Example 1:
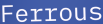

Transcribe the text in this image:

Ferrous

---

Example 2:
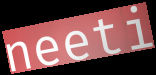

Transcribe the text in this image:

neeti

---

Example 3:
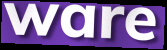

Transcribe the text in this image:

ware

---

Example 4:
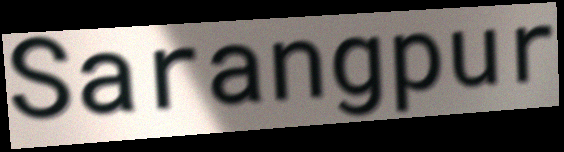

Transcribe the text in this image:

Sarangpur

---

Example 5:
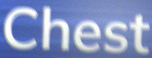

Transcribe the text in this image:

Chest